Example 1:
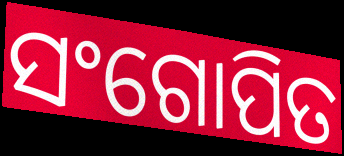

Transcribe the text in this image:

ସଂଗୋପିତ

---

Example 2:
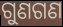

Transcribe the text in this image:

ଗୁଣଗଣ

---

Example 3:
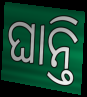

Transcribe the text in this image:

ଘାନ୍ତି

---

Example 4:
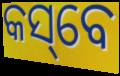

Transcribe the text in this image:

କସ୍‌ବେ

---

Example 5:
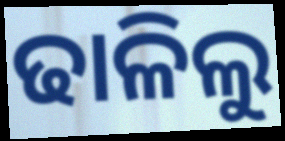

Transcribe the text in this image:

ଢାଳିଲୁ